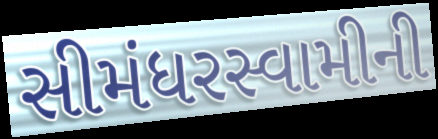
સીમંધરસ્વામીની